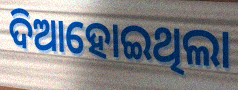
ଦିଆହୋଇଥିଲା